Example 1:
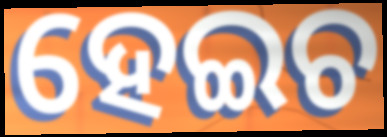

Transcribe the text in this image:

ହେଇଚ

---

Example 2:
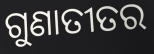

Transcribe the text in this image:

ଗୁଣାତୀତର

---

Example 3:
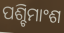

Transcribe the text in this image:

ପଶ୍ଚିମାଂଶ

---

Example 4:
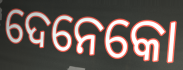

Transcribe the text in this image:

ଦେନେକୋ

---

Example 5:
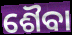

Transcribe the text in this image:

ଶୈବା